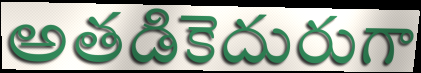
అతడికెదురుగా